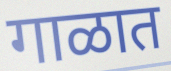
गाळात